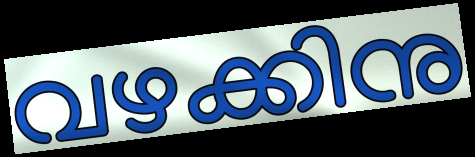
വഴക്കിനു